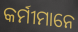
କର୍ମୀମାନେ